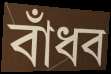
বাঁধব